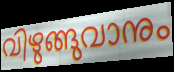
വിഴുങ്ങുവാനും